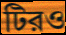
টিরও